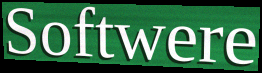
Softwere